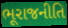
ભૂરાજનીતિ